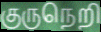
குருநெறி